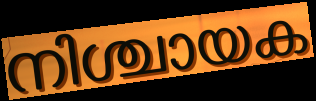
നിശ്ചായക